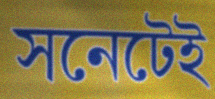
সনেটেই